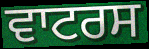
ਵਾਟਰਸ